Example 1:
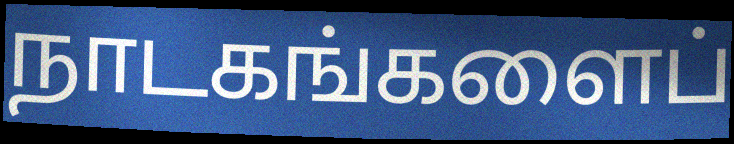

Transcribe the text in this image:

நாடகங்களைப்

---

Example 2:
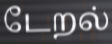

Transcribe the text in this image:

டேறல்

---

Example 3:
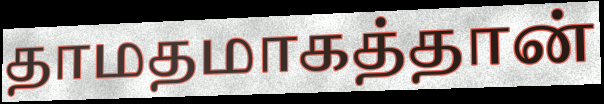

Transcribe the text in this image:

தாமதமாகத்தான்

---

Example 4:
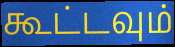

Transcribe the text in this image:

கூட்டவும்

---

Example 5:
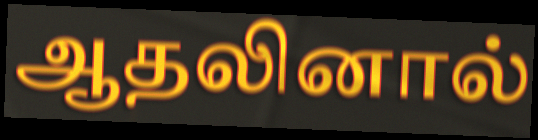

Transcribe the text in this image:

ஆதலினால்